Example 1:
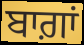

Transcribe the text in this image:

ਬਾਗ਼ਾਂ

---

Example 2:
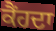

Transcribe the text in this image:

ਕੈਂਹਦਾ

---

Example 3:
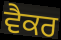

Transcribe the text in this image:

ਵੈਕਰ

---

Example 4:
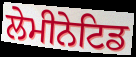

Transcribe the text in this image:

ਲੇਮੀਨੇਟਿਡ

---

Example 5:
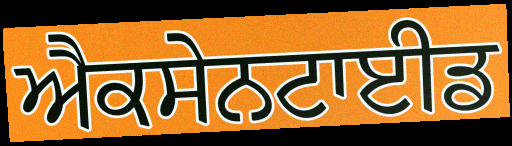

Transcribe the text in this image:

ਐਕਸੇਨਟਾਈਡ